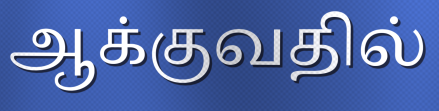
ஆக்குவதில்